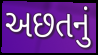
અછતનું